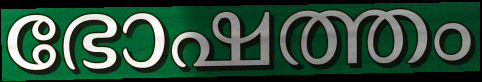
ഭോഷത്തം